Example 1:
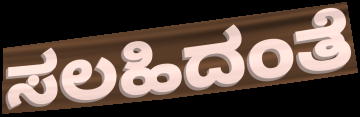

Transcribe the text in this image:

ಸಲಹಿದಂತೆ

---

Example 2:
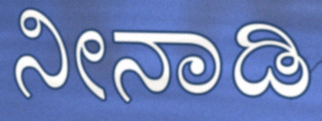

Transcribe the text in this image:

ನೀನಾಡಿ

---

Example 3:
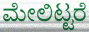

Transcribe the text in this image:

ಮೇಲಿಟ್ಟರೆ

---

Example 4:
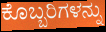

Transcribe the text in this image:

ಕೊಬ್ಬರಿಗಳನ್ನು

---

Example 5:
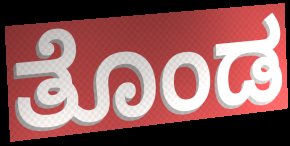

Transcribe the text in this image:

ತೊಂಡ